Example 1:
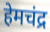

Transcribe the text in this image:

हेमचंद्र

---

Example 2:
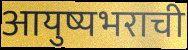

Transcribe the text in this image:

आयुष्यभराची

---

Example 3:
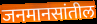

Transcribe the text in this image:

जनमानसांतील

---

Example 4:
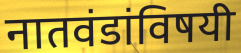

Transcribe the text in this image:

नातवंडांविषयी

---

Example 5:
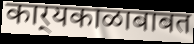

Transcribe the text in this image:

कार्यकाळाबाबत